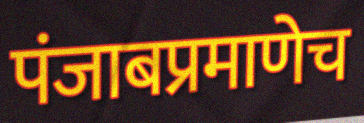
पंजाबप्रमाणेच